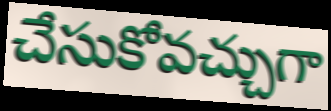
చేసుకోవచ్చుగా